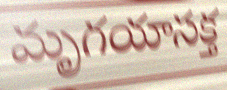
మృగయాసక్త